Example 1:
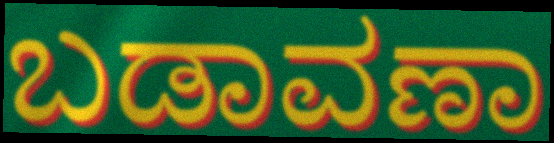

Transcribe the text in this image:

ಬಡಾವಣಾ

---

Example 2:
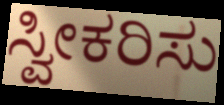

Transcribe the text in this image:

ಸ್ವೀಕರಿಸು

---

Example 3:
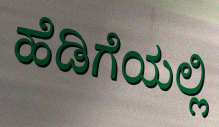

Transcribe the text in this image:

ಹೆಡಿಗೆಯಲ್ಲಿ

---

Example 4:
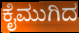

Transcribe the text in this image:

ಕೈಮುಗಿದ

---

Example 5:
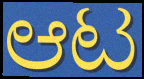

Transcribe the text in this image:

ಆಟ